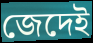
জেদেই